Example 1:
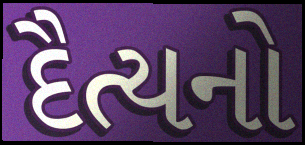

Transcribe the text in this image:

દૈત્યનો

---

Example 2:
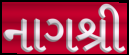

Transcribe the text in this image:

નાગશ્રી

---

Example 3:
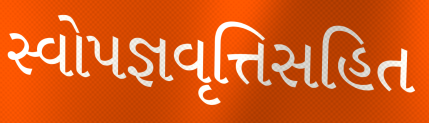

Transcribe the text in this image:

સ્વોપજ્ઞવૃત્તિસહિત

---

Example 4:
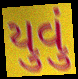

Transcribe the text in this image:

યુવું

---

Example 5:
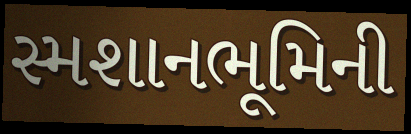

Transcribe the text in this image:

સ્મશાનભૂમિની